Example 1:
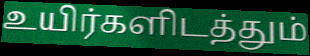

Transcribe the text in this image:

உயிர்களிடத்தும்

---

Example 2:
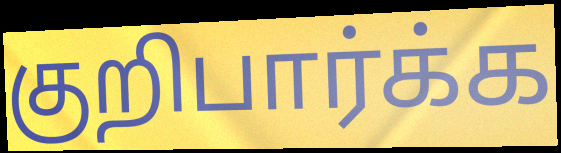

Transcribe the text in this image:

குறிபார்க்க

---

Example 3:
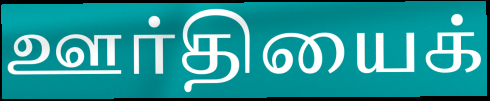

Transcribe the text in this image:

ஊர்தியைக்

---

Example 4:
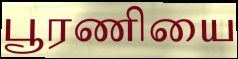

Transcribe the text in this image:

பூரணியை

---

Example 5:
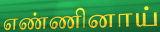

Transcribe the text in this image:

எண்ணினாய்